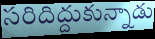
సరిదిద్దుకున్నాడు